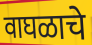
वाघळाचे